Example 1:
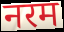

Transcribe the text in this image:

नरम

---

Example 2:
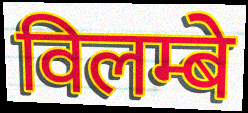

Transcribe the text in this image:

विलम्बे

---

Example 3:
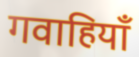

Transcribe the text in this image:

गवाहियाँ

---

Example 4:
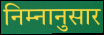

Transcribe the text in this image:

निम्‍नानुसार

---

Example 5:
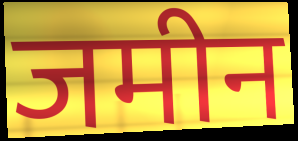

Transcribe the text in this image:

जमीन